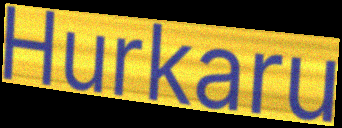
Hurkaru